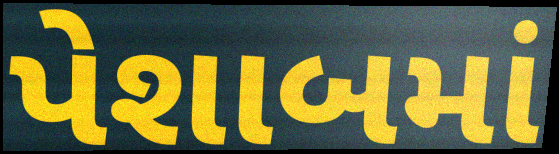
પેશાબમાં